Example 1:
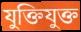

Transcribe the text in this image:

যুক্তিযুক্ত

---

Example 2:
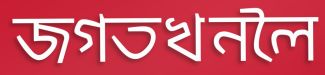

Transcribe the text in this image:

জগতখনলৈ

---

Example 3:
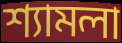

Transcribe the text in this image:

শ্যামলা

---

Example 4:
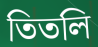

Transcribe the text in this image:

তিতলি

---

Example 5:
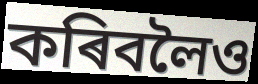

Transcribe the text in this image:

কৰিবলৈও